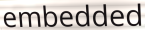
embedded